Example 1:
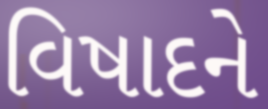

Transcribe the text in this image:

વિષાદને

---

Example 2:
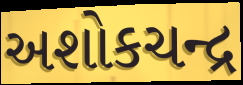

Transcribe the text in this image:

અશોકચન્દ્ર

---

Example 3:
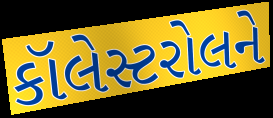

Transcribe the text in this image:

કૉલેસ્ટરોલને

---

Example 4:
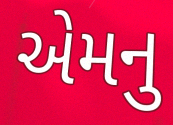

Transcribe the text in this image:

એમનુ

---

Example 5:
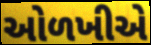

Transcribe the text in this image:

ઓળખીએ